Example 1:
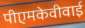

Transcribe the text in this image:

पीएमकेवीवाई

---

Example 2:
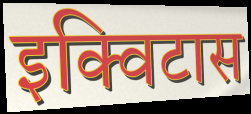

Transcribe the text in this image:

इक्विटास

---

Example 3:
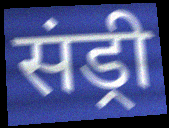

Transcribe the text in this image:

संड्री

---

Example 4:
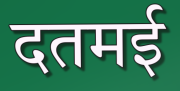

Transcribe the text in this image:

दतमई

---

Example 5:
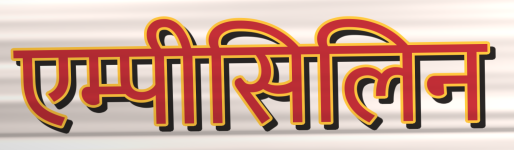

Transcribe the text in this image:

एम्पीसिलिन